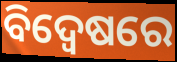
ବିଦ୍ଵେଷରେ